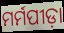
ମର୍ମପୀଡ଼ା